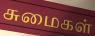
சுமைகள்